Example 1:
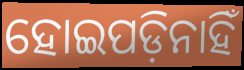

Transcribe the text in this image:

ହୋଇପଡ଼ିନାହିଁ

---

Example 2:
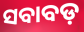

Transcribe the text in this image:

ସବାବଡ଼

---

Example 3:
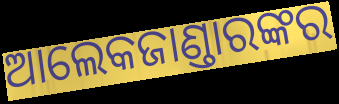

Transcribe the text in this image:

ଆଲେକଜାଣ୍ଡାରଙ୍କର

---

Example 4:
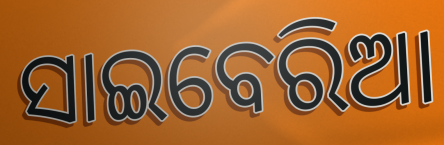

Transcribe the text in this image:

ସାଇବେରିଆ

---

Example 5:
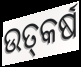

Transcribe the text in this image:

ଉତ୍‌କର୍ଷ